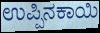
ಉಪ್ಪಿನಕಾಯಿ